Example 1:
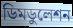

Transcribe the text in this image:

ডিমডুলেশন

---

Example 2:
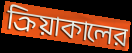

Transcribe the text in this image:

ক্রিয়াকালের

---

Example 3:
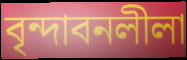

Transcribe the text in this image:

বৃন্দাবনলীলা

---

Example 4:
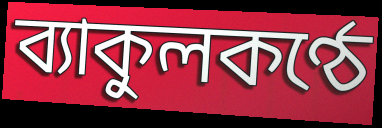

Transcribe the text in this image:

ব্যাকুলকণ্ঠে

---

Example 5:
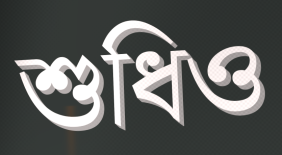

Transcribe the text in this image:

শুধিও